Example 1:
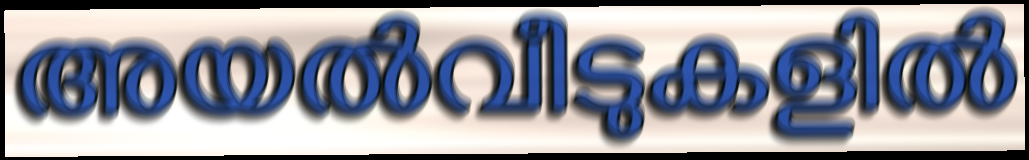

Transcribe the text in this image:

അയൽവീടുകളിൽ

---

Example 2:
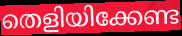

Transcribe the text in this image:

തെളിയിക്കേണ്ട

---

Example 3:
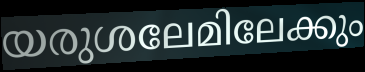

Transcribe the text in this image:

യരുശലേമിലേക്കും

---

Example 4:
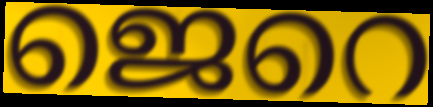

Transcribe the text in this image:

ജെറെ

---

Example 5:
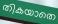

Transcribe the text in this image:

തികയാതെ